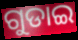
ଗୁଡାଇ